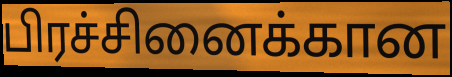
பிரச்சினைக்கான